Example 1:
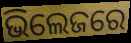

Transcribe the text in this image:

ଭିଲେଜରେ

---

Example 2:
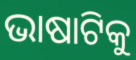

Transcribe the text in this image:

ଭାଷାଟିକୁ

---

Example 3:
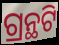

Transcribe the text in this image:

ଗ୍ରନ୍ଥଟି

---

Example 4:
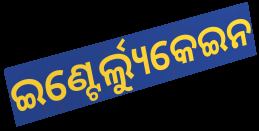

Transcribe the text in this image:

ଇଣ୍ଟେର୍ଲ୍ୟୁକେଇନ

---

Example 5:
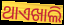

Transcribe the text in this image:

ଥାଏଖାଲି